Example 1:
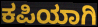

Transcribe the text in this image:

ಕಪಿಯಾಗಿ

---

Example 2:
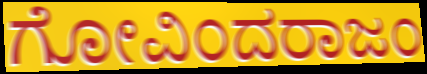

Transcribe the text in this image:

ಗೋವಿಂದರಾಜಂ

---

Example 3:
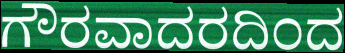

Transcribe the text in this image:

ಗೌರವಾದರದಿಂದ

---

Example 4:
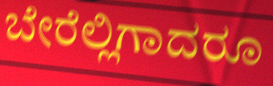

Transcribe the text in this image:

ಬೇರೆಲ್ಲಿಗಾದರೂ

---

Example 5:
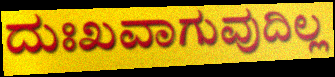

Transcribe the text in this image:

ದುಃಖವಾಗುವುದಿಲ್ಲ